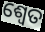
ଶ୍ଵେତ